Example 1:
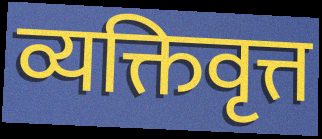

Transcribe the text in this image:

व्यक्तिवृत्त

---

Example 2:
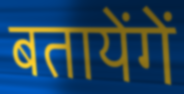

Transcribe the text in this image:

बतायेंगें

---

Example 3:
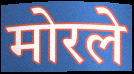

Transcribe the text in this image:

मोरले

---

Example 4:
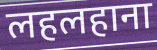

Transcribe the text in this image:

लहलहाना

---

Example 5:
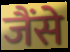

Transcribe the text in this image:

जैंसे